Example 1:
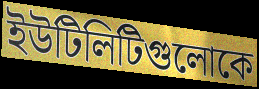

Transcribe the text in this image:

ইউটিলিটিগুলোকে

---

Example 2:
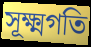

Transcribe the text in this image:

সূক্ষ্মগতি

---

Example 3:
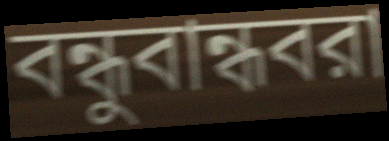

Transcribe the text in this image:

বন্ধুবান্ধবরা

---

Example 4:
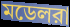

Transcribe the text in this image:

মডেলরা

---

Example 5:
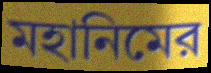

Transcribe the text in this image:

মহানিমের